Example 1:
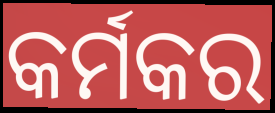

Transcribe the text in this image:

କର୍ମକର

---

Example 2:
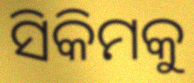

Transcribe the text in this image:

ସିକିମକୁ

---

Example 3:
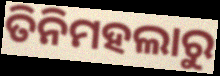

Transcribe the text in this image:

ତିନିମହଲାରୁ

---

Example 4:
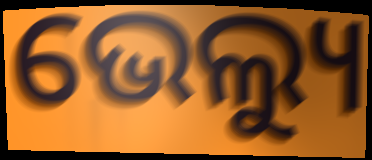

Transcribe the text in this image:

ଭେଲ୍ୟୁ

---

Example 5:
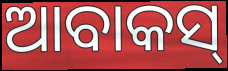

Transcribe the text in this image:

ଆବାକସ୍